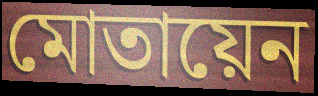
মোতায়েন